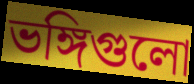
ভঙ্গিগুলো